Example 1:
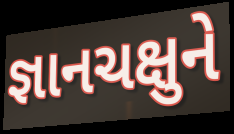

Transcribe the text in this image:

જ્ઞાનચક્ષુને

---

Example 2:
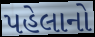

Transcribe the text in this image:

પહેલાનો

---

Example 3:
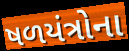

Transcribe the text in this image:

ષળયંત્રોના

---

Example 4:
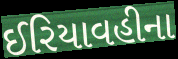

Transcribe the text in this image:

ઈરિયાવહીના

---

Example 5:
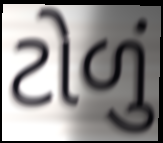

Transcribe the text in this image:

ટોળું